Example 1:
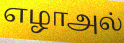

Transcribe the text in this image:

எழாஅல்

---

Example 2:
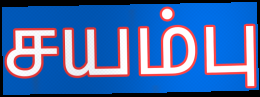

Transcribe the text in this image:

சயம்பு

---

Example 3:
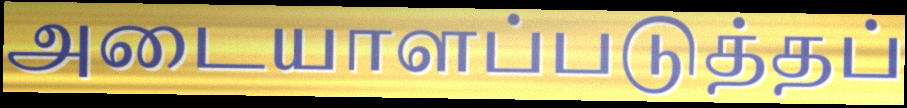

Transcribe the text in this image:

அடையாளப்படுத்தப்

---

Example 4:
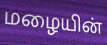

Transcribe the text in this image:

மழையின்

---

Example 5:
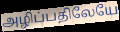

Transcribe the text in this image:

அழிப்பதிலேயே